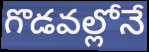
గొడవల్లోనే